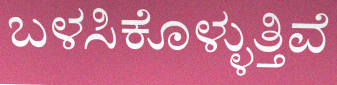
ಬಳಸಿಕೊಳ್ಳುತ್ತಿವೆ